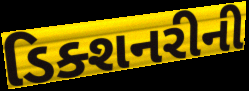
ડિક્શનરીની